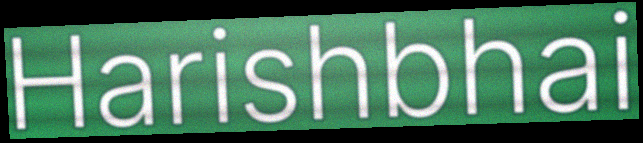
Harishbhai